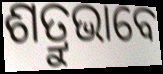
ଶତ୍ରୁଭାବେ